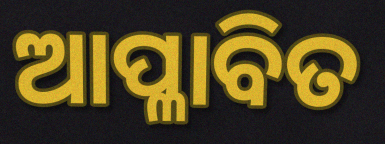
ଆପ୍ଳାବିତ